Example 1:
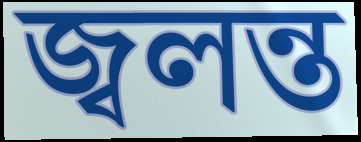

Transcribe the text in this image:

জ্বলন্ত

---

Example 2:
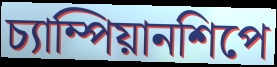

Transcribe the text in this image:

চ্যাম্পিয়ানশিপে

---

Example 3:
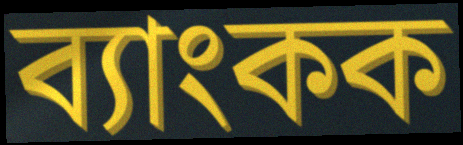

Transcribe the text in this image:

ব্যাংকক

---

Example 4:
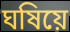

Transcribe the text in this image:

ঘষিয়ে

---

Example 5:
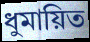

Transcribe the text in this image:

ধুমায়িত